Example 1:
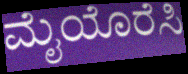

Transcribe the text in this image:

ಮೈಯೊರೆಸಿ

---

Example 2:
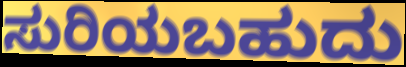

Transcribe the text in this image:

ಸುರಿಯಬಹುದು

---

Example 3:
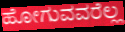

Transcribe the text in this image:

ಹೋಗುವವರೆಲ್ಲ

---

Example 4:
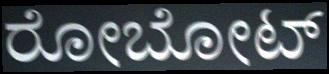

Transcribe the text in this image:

ರೋಬೋಟ್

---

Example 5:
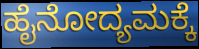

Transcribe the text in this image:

ಹೈನೋದ್ಯಮಕ್ಕೆ